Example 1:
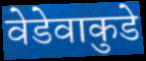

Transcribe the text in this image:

वेडेवाकुडे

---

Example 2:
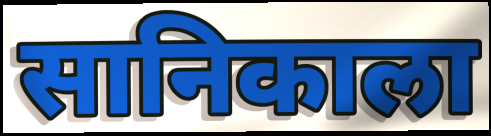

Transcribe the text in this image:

सानिकाला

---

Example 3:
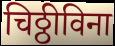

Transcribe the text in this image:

चिठ्ठीविना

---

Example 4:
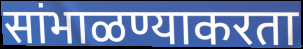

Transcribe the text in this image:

सांभाळण्याकरता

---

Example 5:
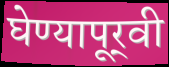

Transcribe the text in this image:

घेण्यापूर्वी